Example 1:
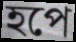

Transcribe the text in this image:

হপে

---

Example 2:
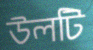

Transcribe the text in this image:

উলটি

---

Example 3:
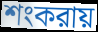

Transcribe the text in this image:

শংকরায়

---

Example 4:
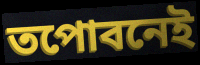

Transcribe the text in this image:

তপোবনেই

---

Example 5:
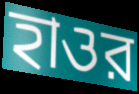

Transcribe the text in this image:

হাওর